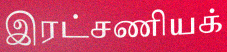
இரட்சணியக்